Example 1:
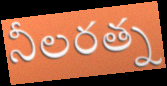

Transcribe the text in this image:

నీలరత్న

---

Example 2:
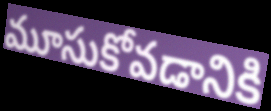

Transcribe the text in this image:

మూసుకోవడానికి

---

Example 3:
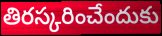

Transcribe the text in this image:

తిరస్కరించేందుకు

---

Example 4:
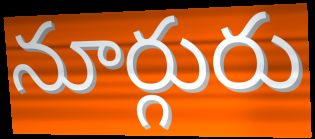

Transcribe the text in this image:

నూర్గురు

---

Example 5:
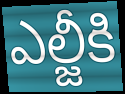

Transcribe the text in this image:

ఎల్జీకి